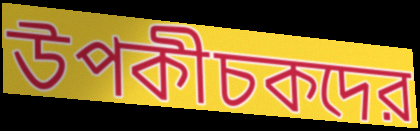
উপকীচকদের